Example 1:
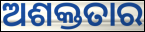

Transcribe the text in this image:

ଅଶକ୍ତତାର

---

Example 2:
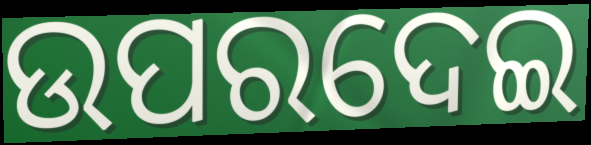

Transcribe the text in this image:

ଉପରଦେଇ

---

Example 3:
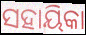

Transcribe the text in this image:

ସହାୟିକା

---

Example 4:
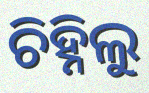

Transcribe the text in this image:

ଚିହ୍ନିଲୁ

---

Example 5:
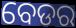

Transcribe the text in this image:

ବେଡର